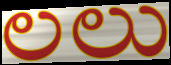
లలు